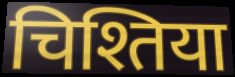
चिश्तिया